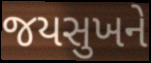
જયસુખને